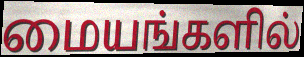
மையங்களில்